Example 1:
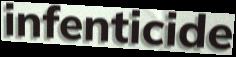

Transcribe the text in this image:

infenticide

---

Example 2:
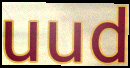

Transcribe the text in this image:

uud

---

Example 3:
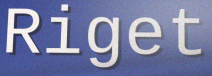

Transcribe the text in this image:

Riget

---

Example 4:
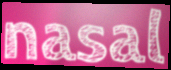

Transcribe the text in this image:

nasal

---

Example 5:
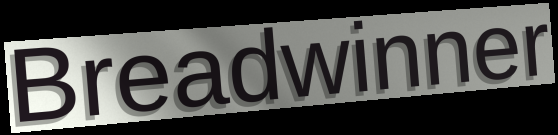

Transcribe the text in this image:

Breadwinner